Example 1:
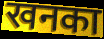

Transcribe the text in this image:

खनका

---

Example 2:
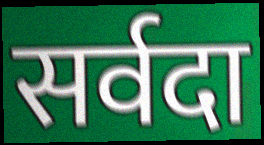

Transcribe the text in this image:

सर्वदा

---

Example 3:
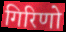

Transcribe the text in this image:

गिरिणो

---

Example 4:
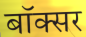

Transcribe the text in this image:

बॉक्सर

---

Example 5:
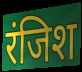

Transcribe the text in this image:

रंजिश